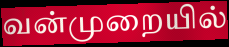
வன்முறையில்